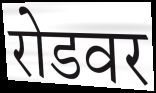
रोडवर